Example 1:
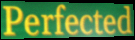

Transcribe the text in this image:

Perfected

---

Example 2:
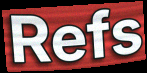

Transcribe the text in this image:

Refs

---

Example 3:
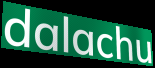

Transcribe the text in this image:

dalachu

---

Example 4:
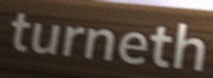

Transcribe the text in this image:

turneth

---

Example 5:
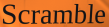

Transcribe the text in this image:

Scramble